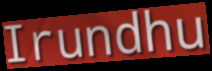
Irundhu